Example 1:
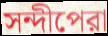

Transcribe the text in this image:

সন্দীপেরা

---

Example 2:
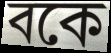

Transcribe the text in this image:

বকে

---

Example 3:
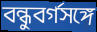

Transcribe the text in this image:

বন্ধুবর্গসঙ্গে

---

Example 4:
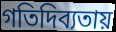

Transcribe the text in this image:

গতিদিব্যতায়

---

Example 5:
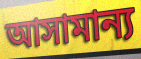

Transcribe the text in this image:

আসামান্য